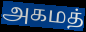
அகமத்